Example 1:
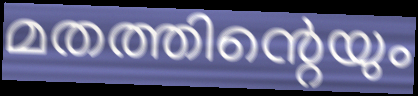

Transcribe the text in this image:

മതത്തിന്റെയും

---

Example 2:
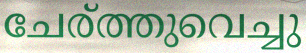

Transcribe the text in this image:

ചേര്ത്തുവെച്ചു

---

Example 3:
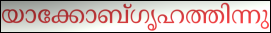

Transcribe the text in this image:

യാക്കോബ്ഗൃഹത്തിന്നു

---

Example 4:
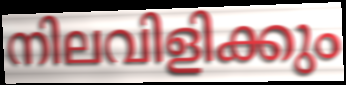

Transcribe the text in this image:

നിലവിളിക്കും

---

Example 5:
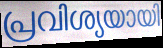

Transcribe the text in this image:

പ്രവിശ്യയായി